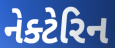
નેક્ટેરિન